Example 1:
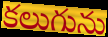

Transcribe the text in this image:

కలుగును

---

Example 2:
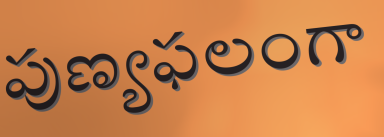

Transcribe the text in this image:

పుణ్యఫలంగా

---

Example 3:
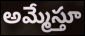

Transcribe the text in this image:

అమ్మేస్తూ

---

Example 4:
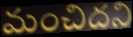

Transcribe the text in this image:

మంచిదని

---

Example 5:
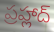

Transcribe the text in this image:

ప్రహ్లాద్